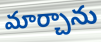
మార్చాను